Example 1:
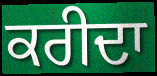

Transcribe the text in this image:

ਕਰੀਦਾ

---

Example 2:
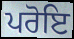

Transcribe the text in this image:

ਪਰੋਇ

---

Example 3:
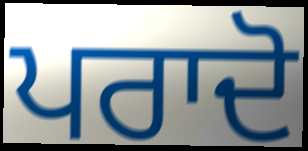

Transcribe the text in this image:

ਪਰਾਦੋ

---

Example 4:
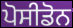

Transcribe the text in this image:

ਪੋਸੀਡੋਨ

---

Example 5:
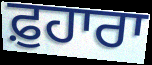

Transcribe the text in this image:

ਫ਼ੁਹਾਰਾ